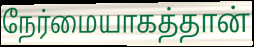
நேர்மையாகத்தான்